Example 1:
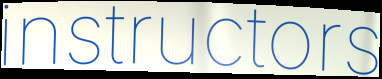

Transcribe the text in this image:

instructors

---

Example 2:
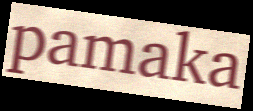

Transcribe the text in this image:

pamaka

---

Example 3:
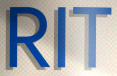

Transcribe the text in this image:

RIT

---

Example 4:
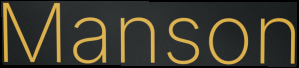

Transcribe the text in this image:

Manson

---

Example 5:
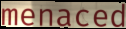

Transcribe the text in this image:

menaced